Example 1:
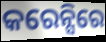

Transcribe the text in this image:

କରେନ୍ସିରେ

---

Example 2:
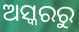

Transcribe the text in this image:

ଅସ୍କରରୁ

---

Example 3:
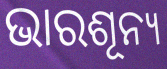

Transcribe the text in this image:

ଭାରଶୂନ୍ୟ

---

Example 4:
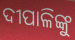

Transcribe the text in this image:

ଦୀପାଳିଙ୍କୁ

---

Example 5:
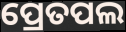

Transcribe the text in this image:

ପ୍ରେତପଲ